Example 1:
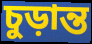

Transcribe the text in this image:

চুড়ান্ত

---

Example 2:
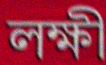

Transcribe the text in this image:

লক্ষী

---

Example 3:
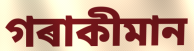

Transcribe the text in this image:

গৰাকীমান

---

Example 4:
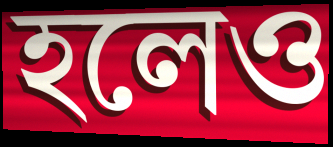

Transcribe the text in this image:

হলেও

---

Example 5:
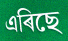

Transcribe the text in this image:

এৰিছে